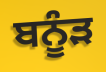
ਬਨੂੰੜ